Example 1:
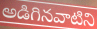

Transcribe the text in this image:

అడిగినవాటిని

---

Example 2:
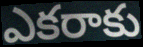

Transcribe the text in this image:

ఎకరాకు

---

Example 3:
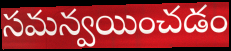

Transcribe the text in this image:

సమన్వయించడం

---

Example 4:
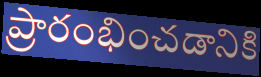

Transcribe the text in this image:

ప్రారంభించడానికి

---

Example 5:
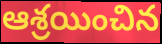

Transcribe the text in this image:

ఆశ్రయించిన